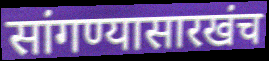
सांगण्यासारखंच